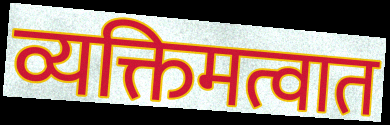
व्यक्तिमत्वात